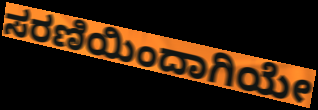
ಸರಣಿಯಿಂದಾಗಿಯೇ